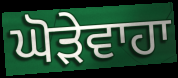
ਘੋੜੇਵਾਹਾ